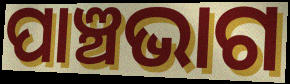
ପାଞ୍ଚଭାଗ